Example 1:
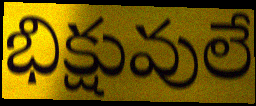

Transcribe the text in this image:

భిక్షువులే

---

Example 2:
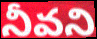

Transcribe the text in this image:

నీవని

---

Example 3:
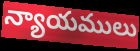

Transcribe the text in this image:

న్యాయములు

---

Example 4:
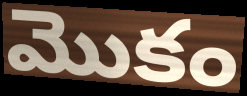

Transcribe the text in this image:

మొకం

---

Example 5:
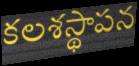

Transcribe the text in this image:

కలశస్థాపన